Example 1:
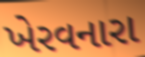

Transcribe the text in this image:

ખેરવનારા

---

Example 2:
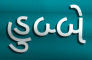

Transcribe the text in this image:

હુબ્બે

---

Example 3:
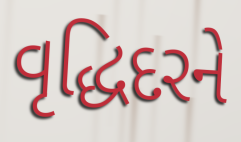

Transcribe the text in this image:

વૃદ્ધિદરને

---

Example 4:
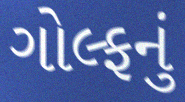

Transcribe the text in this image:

ગોલ્ફનું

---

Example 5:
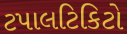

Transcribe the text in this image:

ટપાલટિકિટો